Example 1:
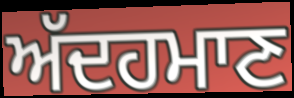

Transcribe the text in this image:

ਅੱਦਹਮਾਣ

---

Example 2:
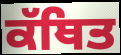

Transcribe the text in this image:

ਕੱਥਿਤ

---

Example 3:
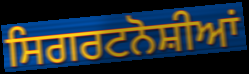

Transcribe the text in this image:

ਸਿਗਰਟਨੋਸ਼ੀਆਂ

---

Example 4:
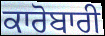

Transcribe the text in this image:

ਕਾਰੋਬਾਰੀ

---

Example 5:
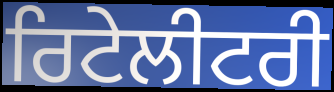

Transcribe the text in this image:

ਰਿਟੇਲੀਟਰੀ